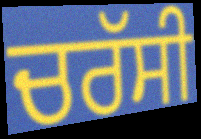
ਚਰੱਸੀ